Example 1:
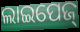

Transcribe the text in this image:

ଲାଇପେଜ୍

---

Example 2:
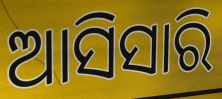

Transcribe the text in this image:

ଆସିସାରି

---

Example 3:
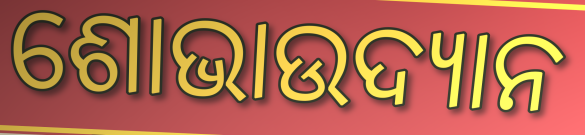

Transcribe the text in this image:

ଶୋଭାଉଦ୍ୟାନ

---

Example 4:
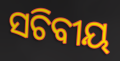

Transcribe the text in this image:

ସଚିବୀୟ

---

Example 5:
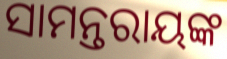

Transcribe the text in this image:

ସାମନ୍ତରାୟଙ୍କ